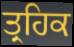
ਤ੍ਰਹਿਕ